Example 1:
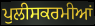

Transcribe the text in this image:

ਪੁਲੀਸਕਰਮੀਆਂ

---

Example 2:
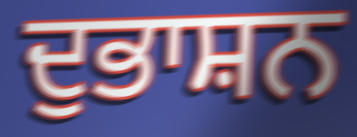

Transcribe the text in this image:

ਦੁਭਾਸ਼ਨ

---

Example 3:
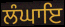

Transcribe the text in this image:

ਲੰਘਾਇ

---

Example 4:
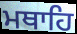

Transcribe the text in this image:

ਮਥਾਹਿ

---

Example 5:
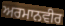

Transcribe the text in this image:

ਅਰਮਾਨਵੀਰ